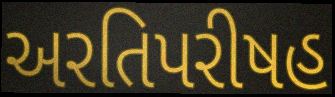
અરતિપરીષહ